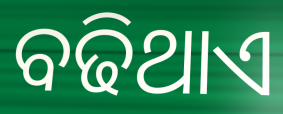
ବଢିଥାଏ